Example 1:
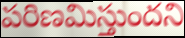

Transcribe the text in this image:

పరిణమిస్తుందని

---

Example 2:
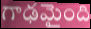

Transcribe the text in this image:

గాఢమైంది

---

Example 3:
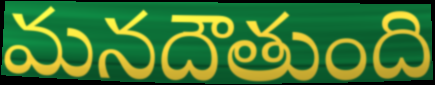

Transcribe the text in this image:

మనదౌతుంది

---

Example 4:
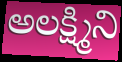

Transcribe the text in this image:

అలక్ష్మిని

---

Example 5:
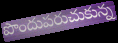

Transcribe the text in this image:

పొందుపరుచుకున్న